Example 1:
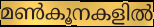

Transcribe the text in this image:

മൺകൂനകളിൽ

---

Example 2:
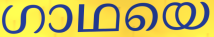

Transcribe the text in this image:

ഗാഥയെ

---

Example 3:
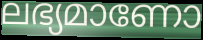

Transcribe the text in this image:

ലഭ്യമാണോ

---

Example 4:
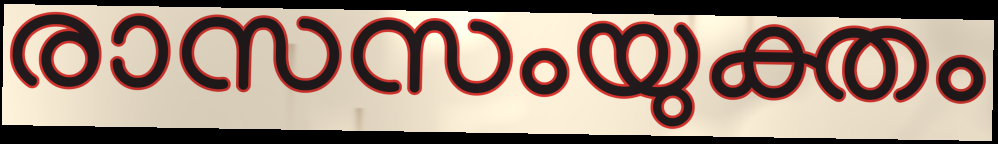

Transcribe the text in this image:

രാസസംയുക്തം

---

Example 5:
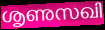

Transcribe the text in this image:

ശൃണുസഖി